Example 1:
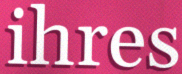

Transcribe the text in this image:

ihres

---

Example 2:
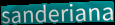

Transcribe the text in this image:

sanderiana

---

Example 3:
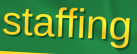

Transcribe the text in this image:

staffing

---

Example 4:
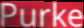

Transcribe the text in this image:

Purke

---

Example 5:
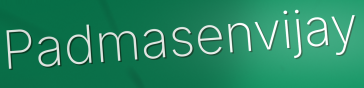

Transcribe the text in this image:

Padmasenvijay